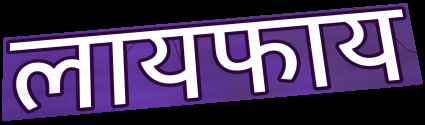
लायफाय